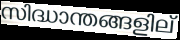
സിദ്ധാന്തങ്ങളില്